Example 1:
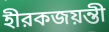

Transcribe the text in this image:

হীরকজয়ন্তী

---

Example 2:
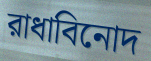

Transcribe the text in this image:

রাধাবিনোদ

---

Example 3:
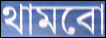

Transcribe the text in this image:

থামবো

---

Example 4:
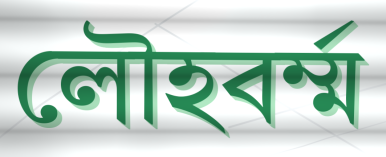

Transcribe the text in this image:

লৌহবর্ম্ম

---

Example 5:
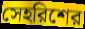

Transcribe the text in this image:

সেহরিশের